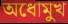
অধোমুখ